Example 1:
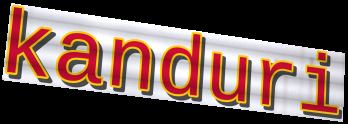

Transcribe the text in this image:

kanduri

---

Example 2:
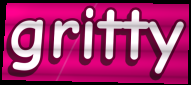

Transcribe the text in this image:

gritty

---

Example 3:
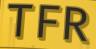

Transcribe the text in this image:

TFR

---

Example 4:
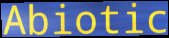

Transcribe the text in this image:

Abiotic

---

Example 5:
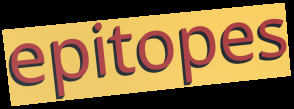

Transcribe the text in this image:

epitopes